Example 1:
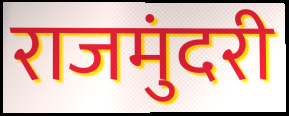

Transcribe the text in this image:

राजमुंदरी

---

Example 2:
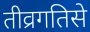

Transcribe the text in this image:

तीव्रगतिसे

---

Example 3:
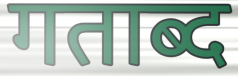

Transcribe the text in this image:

गताब्द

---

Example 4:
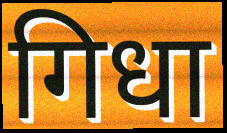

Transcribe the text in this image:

गिधा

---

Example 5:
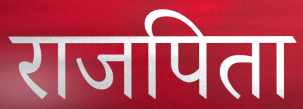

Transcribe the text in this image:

राजपिता